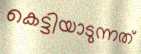
കെട്ടിയാടുന്നത്